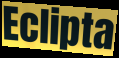
Eclipta